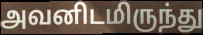
அவனிடமிருந்து